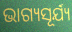
ଭାଗ୍ୟସୂର୍ଯ୍ୟ